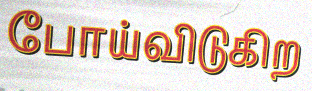
போய்விடுகிற